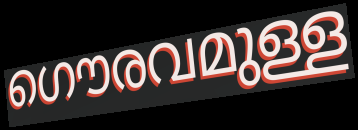
ഗൌരവമുള്ള